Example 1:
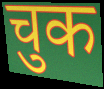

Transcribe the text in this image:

चुक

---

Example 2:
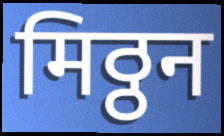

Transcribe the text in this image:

मिठ्ठन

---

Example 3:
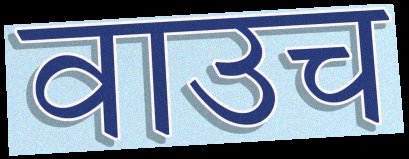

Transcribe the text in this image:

वाउच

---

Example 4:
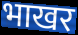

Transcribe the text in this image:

भाखर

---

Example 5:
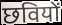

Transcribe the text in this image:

छवियों